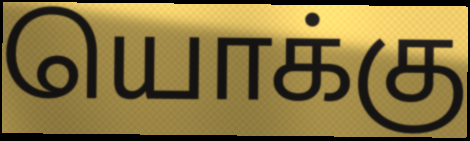
யொக்கு